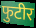
फुटीर